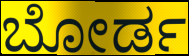
ಬೋರ್ಡ